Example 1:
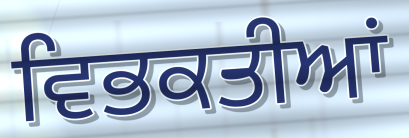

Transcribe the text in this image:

ਵਿਭਕਤੀਆਂ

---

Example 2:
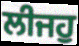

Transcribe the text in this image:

ਲੀਜਹੁ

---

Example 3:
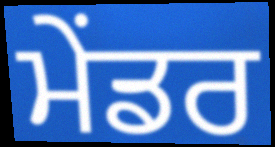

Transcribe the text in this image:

ਮੇਂਡਰ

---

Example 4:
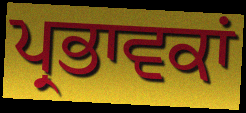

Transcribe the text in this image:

ਪ੍ਰਭਾਵਕਾਂ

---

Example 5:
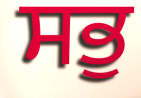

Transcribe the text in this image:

ਸਭੁ